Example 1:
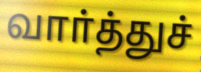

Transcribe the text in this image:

வார்த்துச்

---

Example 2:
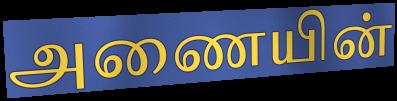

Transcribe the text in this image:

அணையின்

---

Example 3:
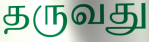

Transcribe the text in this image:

தருவது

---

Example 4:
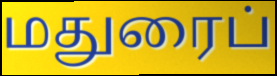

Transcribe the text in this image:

மதுரைப்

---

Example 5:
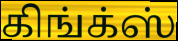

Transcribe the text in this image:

கிங்க்ஸ்